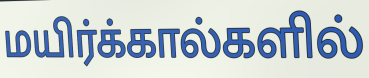
மயிர்க்கால்களில்